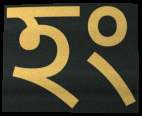
হং